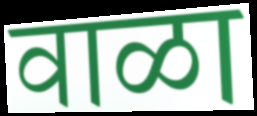
वाळा